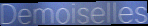
Demoiselles